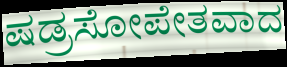
ಷಡ್ರಸೋಪೇತವಾದ